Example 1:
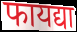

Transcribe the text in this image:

फायद्या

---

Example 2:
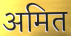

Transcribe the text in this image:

अमित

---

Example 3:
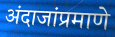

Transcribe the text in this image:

अंदाजांप्रमाणे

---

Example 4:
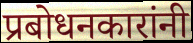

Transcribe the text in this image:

प्रबोधनकारांनी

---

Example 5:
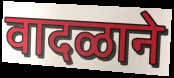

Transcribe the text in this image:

वादळाने